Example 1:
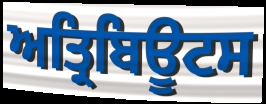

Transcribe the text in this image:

ਅਤ੍ਰਿਬਿਊਟਸ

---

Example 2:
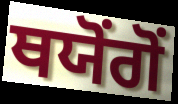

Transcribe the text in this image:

ਥਯੋਂਗੋਂ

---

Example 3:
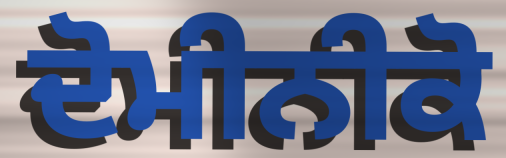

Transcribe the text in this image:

ਦੋਮੀਨੀਕੋ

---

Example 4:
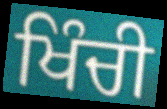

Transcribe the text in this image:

ਖਿੰਚੀ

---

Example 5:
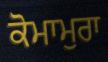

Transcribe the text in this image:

ਕੋਮਾਮੁਰਾ